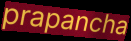
prapancha